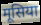
मूसिया